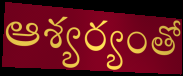
ఆశ్యర్యంతో